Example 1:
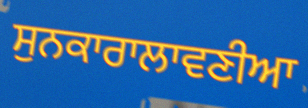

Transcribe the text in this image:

ਸੁਨਕਾਰਾਲਾਵਣੀਆ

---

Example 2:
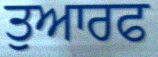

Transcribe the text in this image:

ਤੁਆਰਫ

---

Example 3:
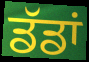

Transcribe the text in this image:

ਡੱਡਾਂ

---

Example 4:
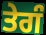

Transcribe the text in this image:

ਤੇਗੰ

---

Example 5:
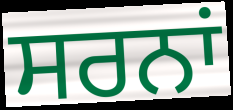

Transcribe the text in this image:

ਸਰਨਾਂ